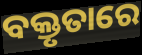
ବକ୍ତୃତାରେ